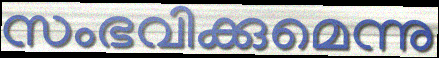
സംഭവിക്കുമെന്നു